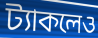
ট্যাকলেও